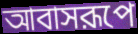
আবাসরূপে